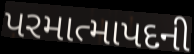
પરમાત્માપદની